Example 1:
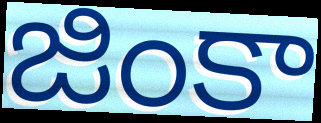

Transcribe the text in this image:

జింకా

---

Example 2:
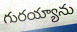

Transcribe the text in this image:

గురయ్యాను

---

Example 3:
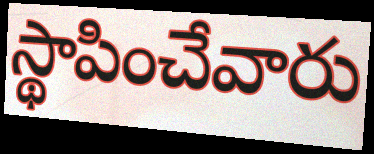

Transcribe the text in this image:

స్థాపించేవారు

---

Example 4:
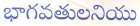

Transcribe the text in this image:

భాగవతులనియు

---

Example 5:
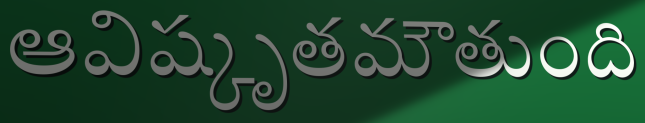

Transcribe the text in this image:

ఆవిష్కృతమౌతుంది